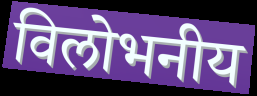
विलोभनीय